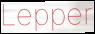
Lepper